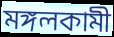
মঙ্গলকামী